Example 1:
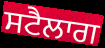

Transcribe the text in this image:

ਸਟੈਲਾਗ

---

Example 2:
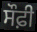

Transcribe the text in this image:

ਸੌਫ਼ੀ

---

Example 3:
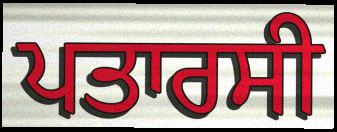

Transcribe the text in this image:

ਪਤਾਰਸੀ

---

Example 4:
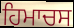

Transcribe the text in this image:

ਹਿਮਾਚਸ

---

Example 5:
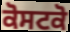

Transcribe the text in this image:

ਕੋਸਟਕੋ